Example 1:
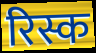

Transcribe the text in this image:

रिस्क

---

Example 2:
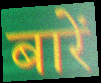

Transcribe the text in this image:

बारें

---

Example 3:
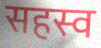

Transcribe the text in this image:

सहस्व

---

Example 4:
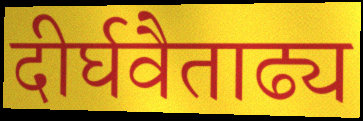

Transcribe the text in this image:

दीर्घवैताढ्य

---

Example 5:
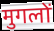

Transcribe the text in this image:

मुगलों